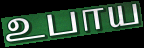
உபாய